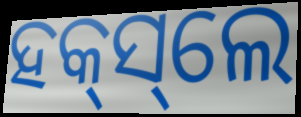
ହକ୍‌ସ୍‌ଲେ